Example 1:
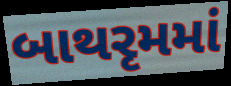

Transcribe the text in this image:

બાથરૃમમાં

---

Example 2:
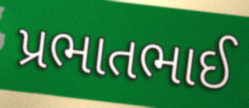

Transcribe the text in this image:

પ્રભાતભાઈ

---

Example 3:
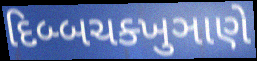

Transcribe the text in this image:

દિબ્બચક્ખુઞાણે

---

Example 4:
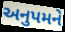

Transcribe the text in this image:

અનુપમને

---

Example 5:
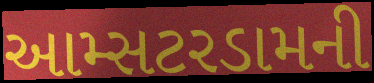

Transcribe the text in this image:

આમ્સટરડામની